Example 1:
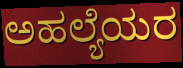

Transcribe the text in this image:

ಅಹಲ್ಯೆಯರ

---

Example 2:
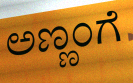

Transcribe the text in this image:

ಅಣ್ಣಂಗೆ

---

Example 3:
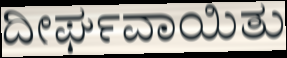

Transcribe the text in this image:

ದೀರ್ಘವಾಯಿತು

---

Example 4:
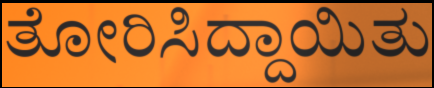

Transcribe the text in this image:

ತೋರಿಸಿದ್ದಾಯಿತು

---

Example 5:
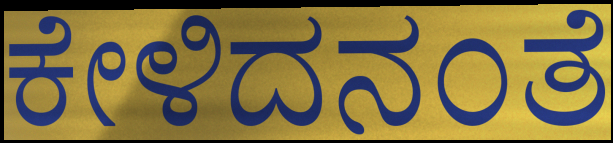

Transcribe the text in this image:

ಕೇಳಿದನಂತೆ